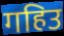
गहिउ